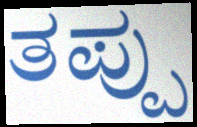
ತಪ್ಪು